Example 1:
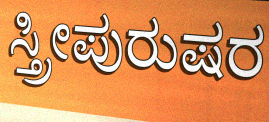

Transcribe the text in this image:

ಸ್ತ್ರೀಪುರುಷರ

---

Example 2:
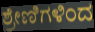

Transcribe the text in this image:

ಶ್ರೇಣಿಗಳಿಂದ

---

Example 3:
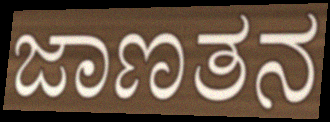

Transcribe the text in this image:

ಜಾಣತನ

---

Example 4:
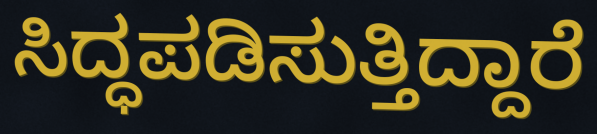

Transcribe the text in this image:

ಸಿದ್ಧಪಡಿಸುತ್ತಿದ್ದಾರೆ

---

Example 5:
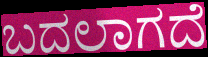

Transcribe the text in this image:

ಬದಲಾಗದೆ